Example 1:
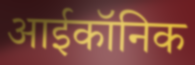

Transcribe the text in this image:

आईकॉनिक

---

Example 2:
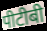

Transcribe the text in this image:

पीटीबी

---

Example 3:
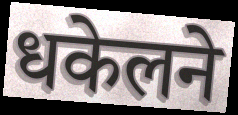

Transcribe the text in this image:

धकेलने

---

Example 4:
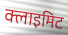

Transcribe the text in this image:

क्लाइमिट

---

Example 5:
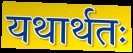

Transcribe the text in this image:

यथार्थतः